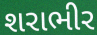
શરાભીર